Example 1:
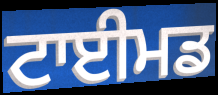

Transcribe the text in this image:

ਟਾਈਮਡ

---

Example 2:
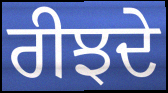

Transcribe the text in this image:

ਰੀਝਦੇ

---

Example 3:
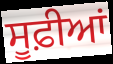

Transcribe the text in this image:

ਸੂਫ਼ੀਆਂ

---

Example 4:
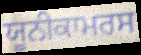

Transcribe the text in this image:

ਯੂਨੀਕਾਮਰਸ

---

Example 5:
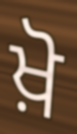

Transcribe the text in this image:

ਖ਼ੋ